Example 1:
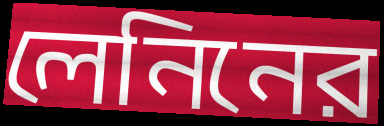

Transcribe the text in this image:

লেনিনের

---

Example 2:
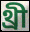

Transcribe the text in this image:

থ্রী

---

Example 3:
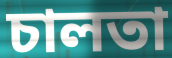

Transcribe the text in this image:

চালতা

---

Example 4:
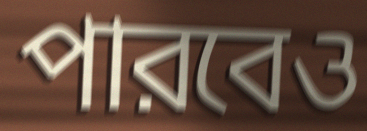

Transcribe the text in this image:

পারবেও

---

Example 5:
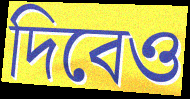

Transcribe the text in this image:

দিবেও